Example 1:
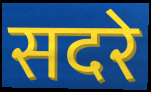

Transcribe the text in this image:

सदरे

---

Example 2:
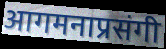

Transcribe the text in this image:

आगमनाप्रसंगी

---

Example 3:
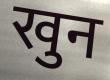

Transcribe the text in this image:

खुन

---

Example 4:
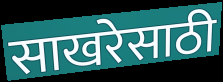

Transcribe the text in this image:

साखरेसाठी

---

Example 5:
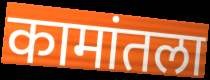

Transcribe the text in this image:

कामांतला